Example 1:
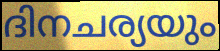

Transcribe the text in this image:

ദിനചര്യയും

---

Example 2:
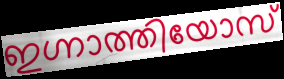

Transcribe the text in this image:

ഇഗ്നാത്തിയോസ്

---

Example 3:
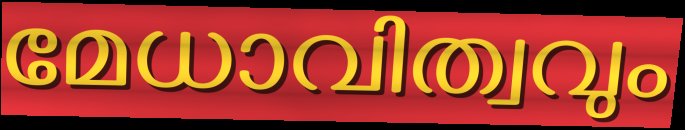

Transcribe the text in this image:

മേധാവിത്വവും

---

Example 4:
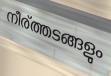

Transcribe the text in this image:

നീര്ത്തടങ്ങളും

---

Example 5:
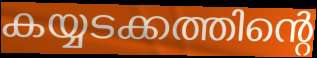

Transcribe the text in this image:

കയ്യടക്കത്തിന്റെ